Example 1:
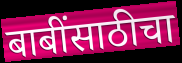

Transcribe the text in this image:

बाबींसाठीचा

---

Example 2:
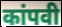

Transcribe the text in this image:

कांपवी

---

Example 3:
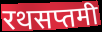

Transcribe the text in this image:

रथसप्तमी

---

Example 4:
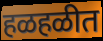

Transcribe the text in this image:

हळहळीत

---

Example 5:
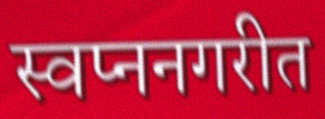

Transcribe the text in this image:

स्वप्ननगरीत